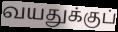
வயதுக்குப்